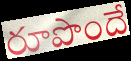
రూపొందే